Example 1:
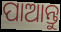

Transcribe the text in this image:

ପାଆନ୍ତୁ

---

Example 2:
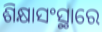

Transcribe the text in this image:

ଶିକ୍ଷାସଂସ୍ଥାରେ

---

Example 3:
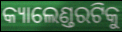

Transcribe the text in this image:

କ୍ୟାଲେଣ୍ଡରଟିକୁ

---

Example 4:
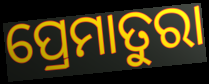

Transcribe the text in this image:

ପ୍ରେମାତୁରା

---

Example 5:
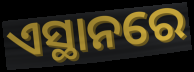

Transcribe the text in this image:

ଏସ୍ଥାନରେ